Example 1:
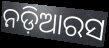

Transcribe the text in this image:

ନଡ଼ିଆରସ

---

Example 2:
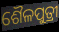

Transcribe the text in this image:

ଶୈଳପୁତ୍ରୀ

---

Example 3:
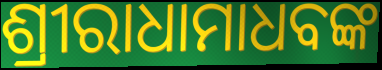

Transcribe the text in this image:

ଶ୍ରୀରାଧାମାଧବଙ୍କ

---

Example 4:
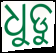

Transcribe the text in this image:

ଧୁଡୁ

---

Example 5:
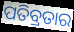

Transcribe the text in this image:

ପତିବ୍ରତାର